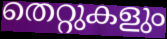
തെറ്റുകളും